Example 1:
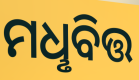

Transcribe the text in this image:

ମଧୢବିତ୍ତ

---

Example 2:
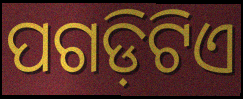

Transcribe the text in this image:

ପଗଡ଼ିଟିଏ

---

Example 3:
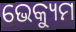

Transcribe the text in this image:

ଭେକ୍ୟୁମ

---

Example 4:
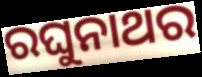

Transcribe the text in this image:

ରଘୁନାଥର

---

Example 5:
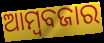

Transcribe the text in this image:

ଆମ୍ୱବଜାର